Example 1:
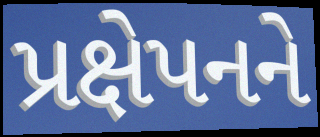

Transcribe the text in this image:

પ્રક્ષેપનને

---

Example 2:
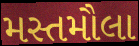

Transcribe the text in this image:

મસ્તમૌલા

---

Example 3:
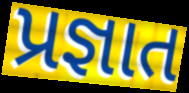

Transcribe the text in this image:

પ્રજ્ઞાત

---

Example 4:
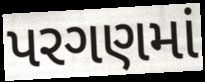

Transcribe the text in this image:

પરગણમાં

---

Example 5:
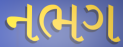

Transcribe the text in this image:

નભગ